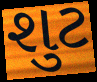
શુટ